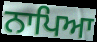
ਨਾਪਿਆ